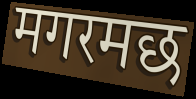
मगरमछ